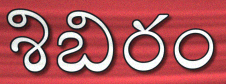
శిబిరం